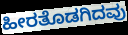
ಹೀರತೊಡಗಿದವು